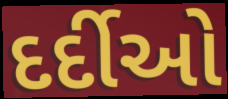
દર્દીઓ